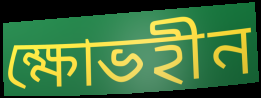
ক্ষোভহীন